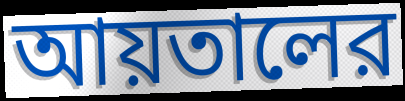
আয়তালের